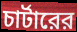
চার্টারের